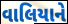
વાલિયાને